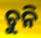
ଚୁନି